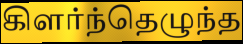
கிளர்ந்தெழுந்த